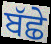
ਬੱਛੇ